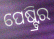
ପେଷ୍ଟ୍ରିର